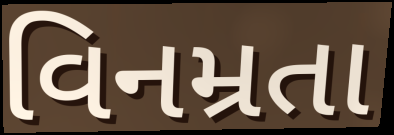
વિનમ્રતા